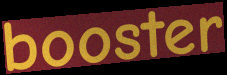
booster